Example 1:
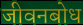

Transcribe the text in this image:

जीवनबोध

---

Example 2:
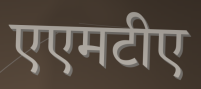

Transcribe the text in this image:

एएमटीए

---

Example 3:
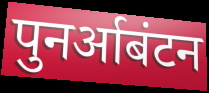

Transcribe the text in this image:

पुनर्आबंटन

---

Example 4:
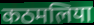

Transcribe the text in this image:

कठमलिया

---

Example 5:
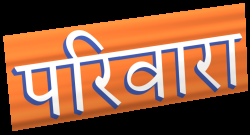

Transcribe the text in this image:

परिवारा